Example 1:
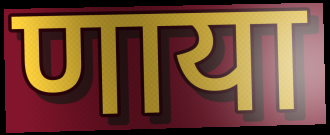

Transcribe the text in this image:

णाया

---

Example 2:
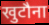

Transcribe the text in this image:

खुटौना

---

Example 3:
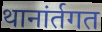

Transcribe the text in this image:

थानांर्तगत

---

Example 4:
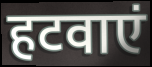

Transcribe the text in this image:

हटवाएं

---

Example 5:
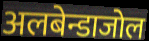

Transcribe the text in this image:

अलबेन्डाजोल